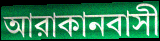
আরাকানবাসী